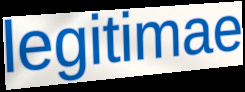
legitimae